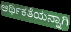
ಆರ್ಥಿಕತೆಯನ್ನಾಗಿ